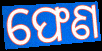
ଫେଣ